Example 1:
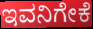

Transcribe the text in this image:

ಇವನಿಗೇಕೆ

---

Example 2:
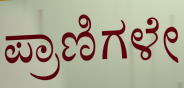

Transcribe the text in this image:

ಪ್ರಾಣಿಗಳೇ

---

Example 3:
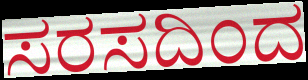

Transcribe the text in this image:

ಸರಸದಿಂದ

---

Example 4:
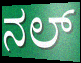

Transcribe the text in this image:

ನಲ್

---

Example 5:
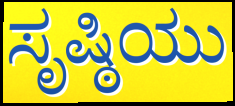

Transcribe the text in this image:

ಸೃಷ್ಠಿಯು